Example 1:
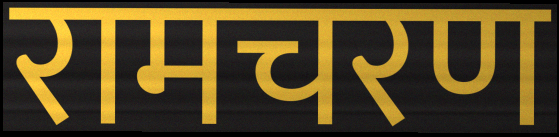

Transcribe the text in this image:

रामचरण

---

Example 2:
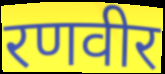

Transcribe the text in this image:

रणवीर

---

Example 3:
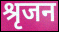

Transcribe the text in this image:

श्रृजन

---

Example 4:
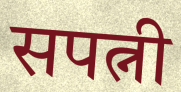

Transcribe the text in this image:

सपत्नी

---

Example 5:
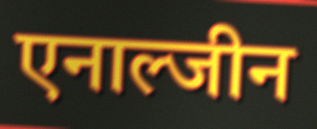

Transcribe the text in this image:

एनाल्जीन